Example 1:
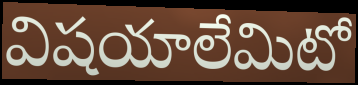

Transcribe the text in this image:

విషయాలేమిటో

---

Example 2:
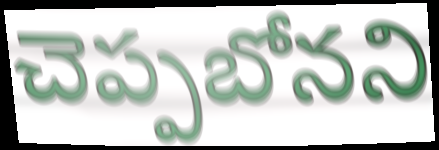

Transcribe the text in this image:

చెప్పబోనని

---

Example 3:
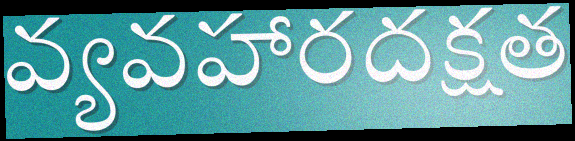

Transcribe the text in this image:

వ్యవహారదక్షత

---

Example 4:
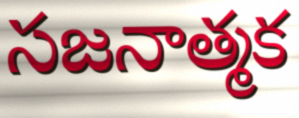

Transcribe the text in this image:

సజనాత్మక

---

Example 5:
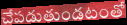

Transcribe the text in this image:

చేపడుతుండటంతో